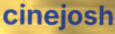
cinejosh